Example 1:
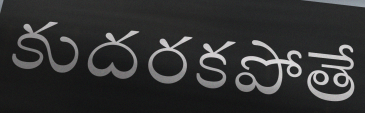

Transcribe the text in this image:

కుదరకపోతే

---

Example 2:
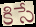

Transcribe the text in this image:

కిసే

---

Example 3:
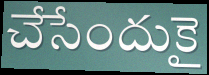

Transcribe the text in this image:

చేసేందుకై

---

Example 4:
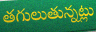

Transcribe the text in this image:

తగులుతున్నట్లు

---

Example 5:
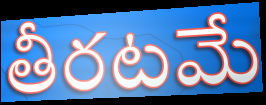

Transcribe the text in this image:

తీరటమే